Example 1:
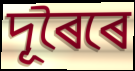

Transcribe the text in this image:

দূৰৈৰে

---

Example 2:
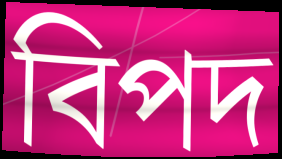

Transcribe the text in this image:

বিপদ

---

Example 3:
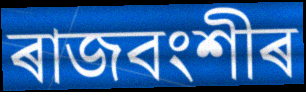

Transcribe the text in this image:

ৰাজবংশীৰ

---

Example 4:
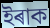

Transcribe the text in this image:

ইৰাক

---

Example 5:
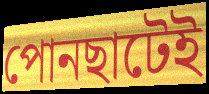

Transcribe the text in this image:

পোনছাটেই